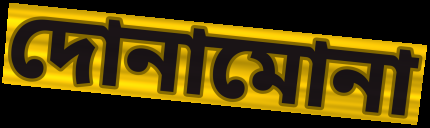
দোনামোনা